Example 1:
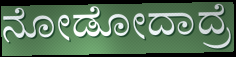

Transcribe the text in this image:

ನೋಡೋದಾದ್ರೆ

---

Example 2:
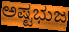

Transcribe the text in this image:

ಅಷ್ಟಭುಜ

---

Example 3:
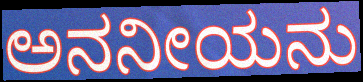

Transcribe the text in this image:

ಅನನೀಯನು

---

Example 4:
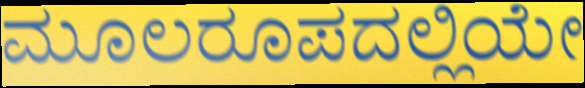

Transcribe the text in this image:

ಮೂಲರೂಪದಲ್ಲಿಯೇ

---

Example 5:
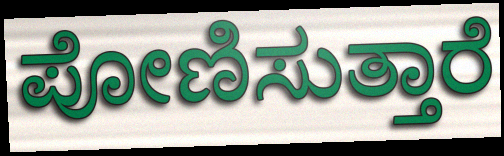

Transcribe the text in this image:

ಪೋಣಿಸುತ್ತಾರೆ